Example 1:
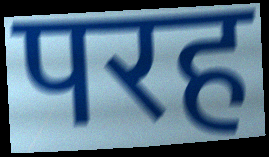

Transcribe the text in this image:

परह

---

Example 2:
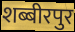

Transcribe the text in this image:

शब्‍बीरपुर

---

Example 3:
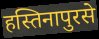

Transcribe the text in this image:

हस्तिनापुरसे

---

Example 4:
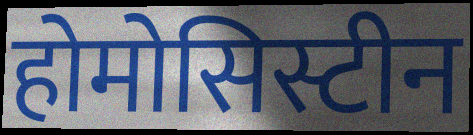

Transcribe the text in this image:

होमोसिस्टीन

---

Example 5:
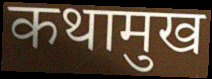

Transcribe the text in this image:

कथामुख